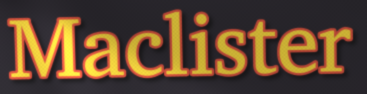
Maclister